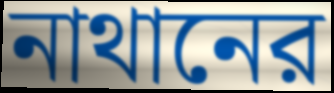
নাথানের